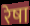
रेषा